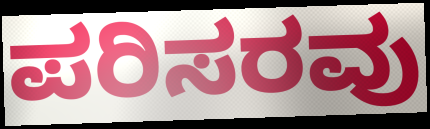
ಪರಿಸರವು